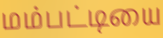
மம்பட்டியை